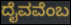
ದೈವವೆಂಬ